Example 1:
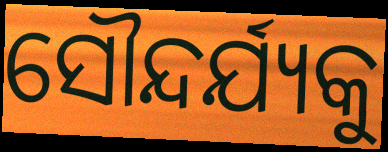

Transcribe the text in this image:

ସୌନ୍ଦର୍ଯ୍ୟକୁ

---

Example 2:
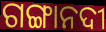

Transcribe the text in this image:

ଗଙ୍ଗାନଦୀ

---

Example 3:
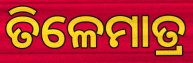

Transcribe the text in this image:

ତିଳେମାତ୍ର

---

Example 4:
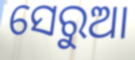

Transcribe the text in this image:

ସେରୁଆ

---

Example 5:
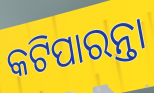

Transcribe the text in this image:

କଟିପାରନ୍ତା